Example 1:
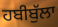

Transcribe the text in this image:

ਹਬੀਬੁੱਲਾ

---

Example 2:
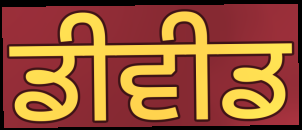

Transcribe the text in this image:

ਡੀਵੀਡ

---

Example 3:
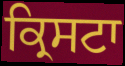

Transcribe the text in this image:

ਕ੍ਰਿਸਟਾ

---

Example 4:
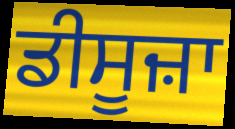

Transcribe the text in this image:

ਡੀਸੂਜ਼ਾ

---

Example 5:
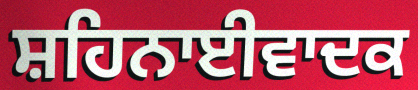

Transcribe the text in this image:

ਸ਼ਹਿਨਾਈਵਾਦਕ